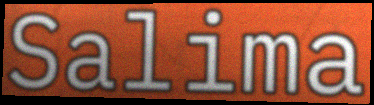
Salima